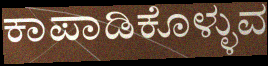
ಕಾಪಾಡಿಕೊಳ್ಳುವ